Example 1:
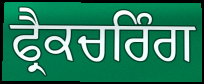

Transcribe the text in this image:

ਫ੍ਰੈਕਚਰਿੰਗ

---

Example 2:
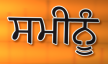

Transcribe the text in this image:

ਸਮੀਨੂੰ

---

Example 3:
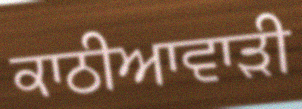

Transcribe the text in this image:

ਕਾਠੀਆਵਾੜੀ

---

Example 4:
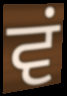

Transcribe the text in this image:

ਵਂ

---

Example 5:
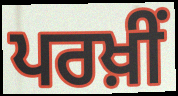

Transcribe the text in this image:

ਪਰਖ਼ੀਂ